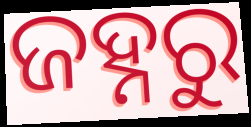
ଜହ୍ନରୁ